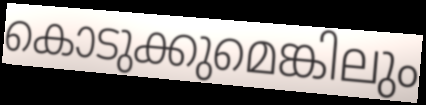
കൊടുക്കുമെങ്കിലും